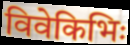
विवेकिभिः